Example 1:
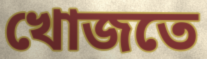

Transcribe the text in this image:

খোজতে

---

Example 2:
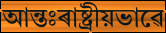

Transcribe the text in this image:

আন্তঃৰাষ্ট্ৰীয়ভাৱে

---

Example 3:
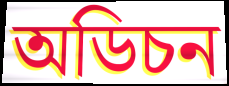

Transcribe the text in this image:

অডিচন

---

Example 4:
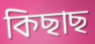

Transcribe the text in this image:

কিছাছ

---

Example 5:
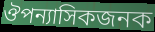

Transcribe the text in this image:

ঔপন্যাসিকজনক